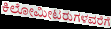
ಕಿಲೋಮೀಟರುಗಳವರೆಗೆ